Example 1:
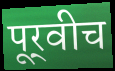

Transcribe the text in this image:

पूर्वीच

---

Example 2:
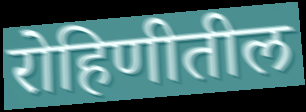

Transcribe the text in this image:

रोहिणीतील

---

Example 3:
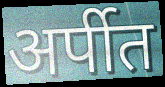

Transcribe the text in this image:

अर्पीत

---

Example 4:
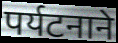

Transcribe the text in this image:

पर्यटनाने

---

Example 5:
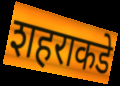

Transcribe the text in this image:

शहराकडे